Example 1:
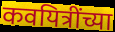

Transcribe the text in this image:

कवयित्रींच्या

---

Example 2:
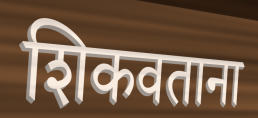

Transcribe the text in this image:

शिकवताना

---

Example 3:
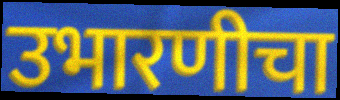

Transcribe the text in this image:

उभारणीचा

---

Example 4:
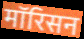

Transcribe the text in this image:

मॉरिसन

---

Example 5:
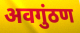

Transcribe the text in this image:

अवगुंठण